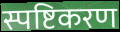
स्पष्टिकरण